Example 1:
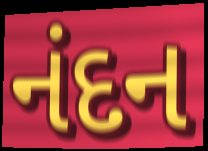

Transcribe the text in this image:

નંદન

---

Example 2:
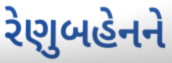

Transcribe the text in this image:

રેણુબહેનને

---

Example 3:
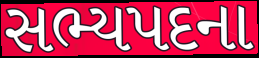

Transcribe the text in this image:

સભ્યપદના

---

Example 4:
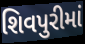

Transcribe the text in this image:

શિવપુરીમાં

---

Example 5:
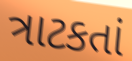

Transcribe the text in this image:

ત્રાટકતાં